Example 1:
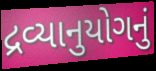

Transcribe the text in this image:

દ્રવ્યાનુયોગનું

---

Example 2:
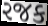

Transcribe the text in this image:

રજક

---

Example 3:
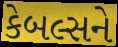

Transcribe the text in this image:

કેબલ્સને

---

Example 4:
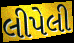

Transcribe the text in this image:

લીપેલી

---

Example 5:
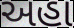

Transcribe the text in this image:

અહા